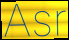
Asr